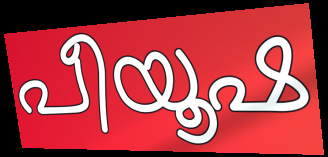
പീയൂഷ